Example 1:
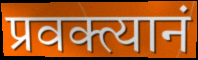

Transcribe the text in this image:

प्रवक्त्यानं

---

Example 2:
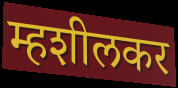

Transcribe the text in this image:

म्हशीलकर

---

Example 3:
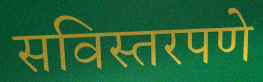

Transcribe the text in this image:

सविस्तरपणे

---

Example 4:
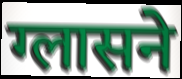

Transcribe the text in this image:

ग्लासने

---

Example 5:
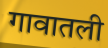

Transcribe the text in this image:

गावातली